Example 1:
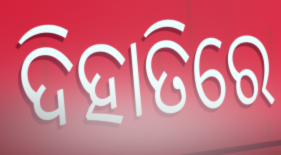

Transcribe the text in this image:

ଦିହାତିରେ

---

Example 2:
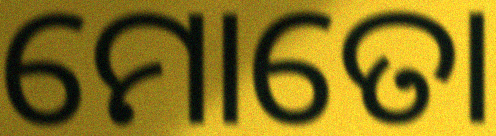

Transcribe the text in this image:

ମୋତୋ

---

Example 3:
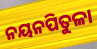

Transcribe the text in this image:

ନୟନପିତୁଳା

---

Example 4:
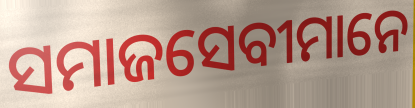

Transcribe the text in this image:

ସମାଜସେବୀମାନେ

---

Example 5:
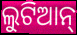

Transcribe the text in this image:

ଲୁଟିଆନ୍